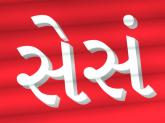
સેસં